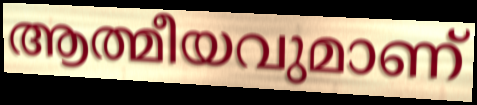
ആത്മീയവുമാണ്